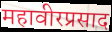
महावीरप्रसाद